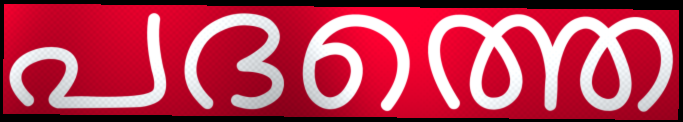
പദത്തെ